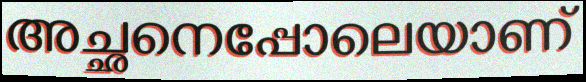
അച്ഛനെപ്പോലെയാണ്